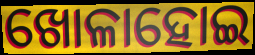
ଖୋଳାହୋଇ